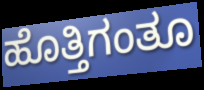
ಹೊತ್ತಿಗಂತೂ